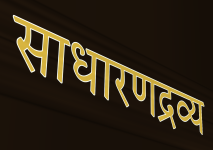
साधारणद्रव्य